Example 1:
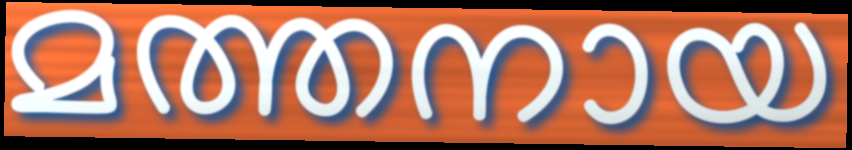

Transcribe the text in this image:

മത്തനായ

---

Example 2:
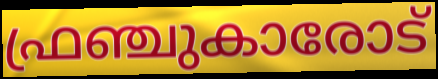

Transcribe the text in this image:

ഫ്രഞ്ചുകാരോട്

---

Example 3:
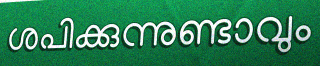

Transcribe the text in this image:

ശപിക്കുന്നുണ്ടാവും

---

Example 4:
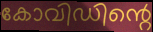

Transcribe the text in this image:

കോവിഡിന്റെ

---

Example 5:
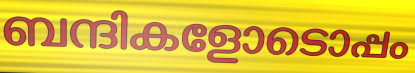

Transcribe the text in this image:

ബന്ദികളോടൊപ്പം